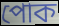
পোক